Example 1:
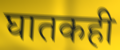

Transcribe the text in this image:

घातकही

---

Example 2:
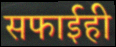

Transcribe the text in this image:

सफाईही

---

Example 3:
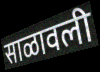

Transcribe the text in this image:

साळावली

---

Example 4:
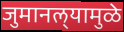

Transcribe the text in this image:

जुमानल्यामुळे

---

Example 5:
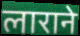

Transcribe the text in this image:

लाराने